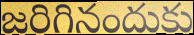
జరిగినందుకు